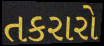
તકરારો